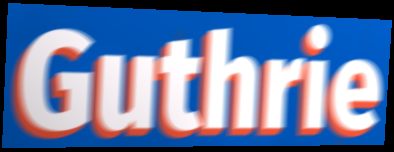
Guthrie